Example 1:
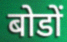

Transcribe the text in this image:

बोडों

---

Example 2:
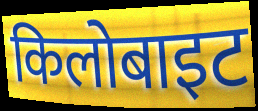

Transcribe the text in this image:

किलोबाइट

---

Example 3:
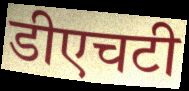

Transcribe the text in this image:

डीएचटी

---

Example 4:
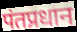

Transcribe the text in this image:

पंतप्रधान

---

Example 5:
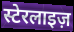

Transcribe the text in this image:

स्टेरलाइज़